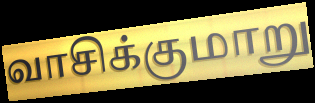
வாசிக்குமாறு